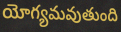
యోగ్యమవుతుంది